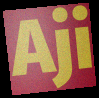
Aji